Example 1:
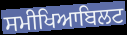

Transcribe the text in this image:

ਸਮੀਖਿਆਬਿਲਟ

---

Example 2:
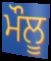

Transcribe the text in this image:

ਮੌਲੂ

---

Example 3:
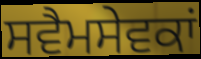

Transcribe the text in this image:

ਸਵੈਮਸੇਵਕਾਂ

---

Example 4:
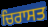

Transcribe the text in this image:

ਚਿਰਾਸਤ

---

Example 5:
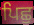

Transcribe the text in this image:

ਪਿਛੁ